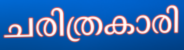
ചരിത്രകാരി